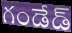
గండేడ్